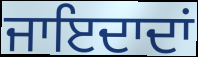
ਜਾਇਦਾਦਾਂ